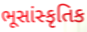
ભૂસાંસ્કૃતિક